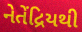
નેતેંદ્રિયથી